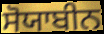
ਸੋਯਾਬੀਨ